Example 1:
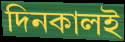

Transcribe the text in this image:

দিনকালই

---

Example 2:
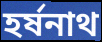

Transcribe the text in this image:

হর্ষনাথ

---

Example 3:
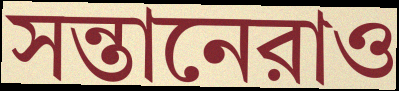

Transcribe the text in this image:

সন্তানেরাও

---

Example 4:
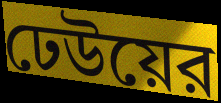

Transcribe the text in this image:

ঢেউয়ের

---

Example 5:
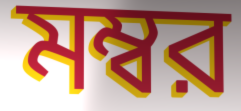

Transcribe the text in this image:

মম্বর